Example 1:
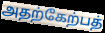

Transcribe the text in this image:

அதற்கேற்பத்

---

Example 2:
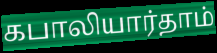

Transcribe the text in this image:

கபாலியார்தாம்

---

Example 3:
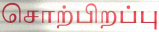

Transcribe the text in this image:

சொற்பிறப்பு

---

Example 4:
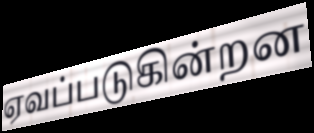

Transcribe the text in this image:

ஏவப்படுகின்றன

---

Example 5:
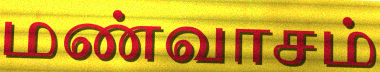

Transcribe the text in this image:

மண்வாசம்